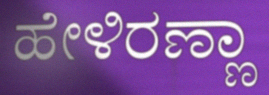
ಹೇಳಿರಣ್ಣಾ